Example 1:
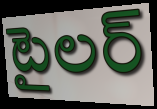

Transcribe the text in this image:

టైలర్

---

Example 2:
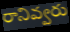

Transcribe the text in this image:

రానివ్వరు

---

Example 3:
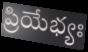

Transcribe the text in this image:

ప్రియేభ్యః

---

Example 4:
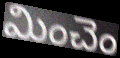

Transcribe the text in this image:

మించెం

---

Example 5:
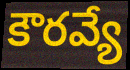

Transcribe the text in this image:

కౌరవ్యే